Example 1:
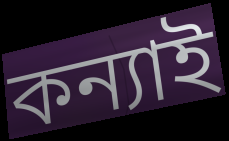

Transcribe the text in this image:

কন্যাই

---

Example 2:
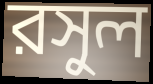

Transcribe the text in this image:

রসুল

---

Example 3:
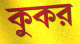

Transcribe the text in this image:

কুকর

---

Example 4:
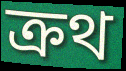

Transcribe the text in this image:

ক্রথ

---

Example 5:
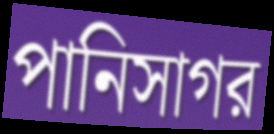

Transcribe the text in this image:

পানিসাগর